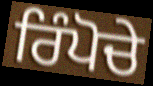
ਰਿੰਪੋਚੇ